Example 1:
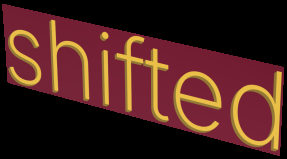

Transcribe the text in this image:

shifted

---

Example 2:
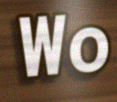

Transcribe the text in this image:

Wo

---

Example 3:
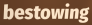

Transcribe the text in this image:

bestowing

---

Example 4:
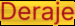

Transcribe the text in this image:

Deraje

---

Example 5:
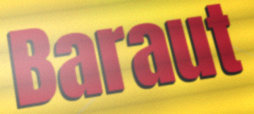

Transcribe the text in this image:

Baraut